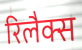
रिलैक्स